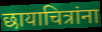
छायाचित्रांना